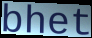
bhet